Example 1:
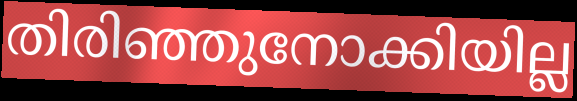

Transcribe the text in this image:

തിരിഞ്ഞുനോക്കിയില്ല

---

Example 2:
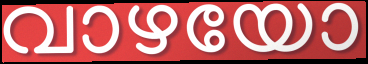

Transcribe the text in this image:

വാഴയോ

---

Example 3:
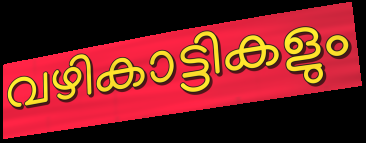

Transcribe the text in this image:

വഴികാട്ടികളും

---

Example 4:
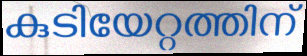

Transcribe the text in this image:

കുടിയേറ്റത്തിന്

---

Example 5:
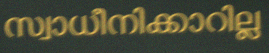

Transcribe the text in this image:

സ്വാധീനിക്കാറില്ല